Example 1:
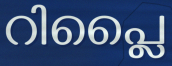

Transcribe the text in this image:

റിപ്ലൈ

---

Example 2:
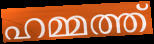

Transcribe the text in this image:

ഹമ്മത്ത്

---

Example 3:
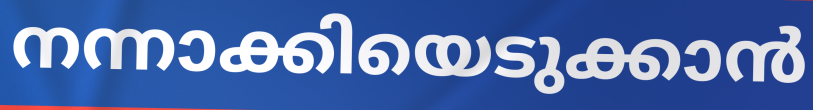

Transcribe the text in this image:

നന്നാക്കിയെടുക്കാൻ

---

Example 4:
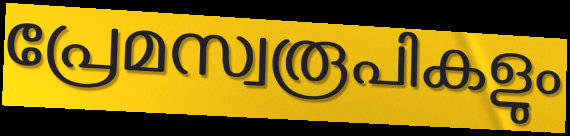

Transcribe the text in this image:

പ്രേമസ്വരൂപികളും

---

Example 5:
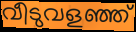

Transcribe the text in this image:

വീടുവളഞ്ഞ്